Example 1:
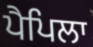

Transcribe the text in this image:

ਪੈਪਿਲਾ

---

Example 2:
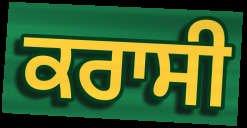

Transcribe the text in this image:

ਕਰਾਸੀ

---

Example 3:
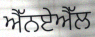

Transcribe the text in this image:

ਐੱਨਏਐੱਲ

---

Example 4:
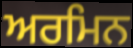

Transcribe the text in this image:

ਅਰਮਿਨ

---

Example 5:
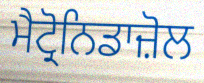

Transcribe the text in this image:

ਮੈਟ੍ਰੋਨਿਡਾਜ਼ੋਲ